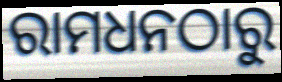
ରାମଧନଠାରୁ